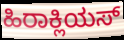
ಹಿರಾಕ್ಲಿಯಸ್